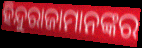
ହିନ୍ଦୁରାଜାମାନଙ୍କର